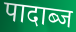
पादाब्ज